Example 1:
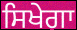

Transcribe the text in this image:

ਸਿਖੇਗਾ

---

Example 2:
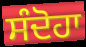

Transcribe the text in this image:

ਸੰਦੋਹਾ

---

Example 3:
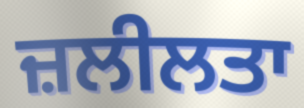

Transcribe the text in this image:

ਜ਼ਲੀਲਤਾ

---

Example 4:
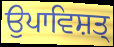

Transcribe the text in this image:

ਉਪਾਵਿਸ਼ਤ੍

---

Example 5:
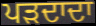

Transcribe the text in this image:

ਪੜਦਾਦਾ